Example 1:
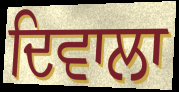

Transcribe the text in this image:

ਦਿਵਾਲਾ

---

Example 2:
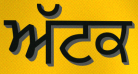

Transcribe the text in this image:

ਅੱਟਕ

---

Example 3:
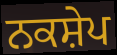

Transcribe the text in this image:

ਨਕਸ਼ੇਪ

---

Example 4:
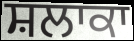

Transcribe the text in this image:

ਸ਼ਲਾਕਾ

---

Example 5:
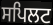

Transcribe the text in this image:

ਸਪਿਲਟ